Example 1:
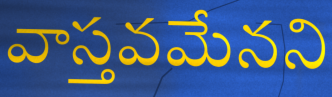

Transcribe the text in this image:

వాస్తవమేనని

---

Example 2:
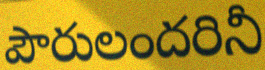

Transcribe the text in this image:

పౌరులందరినీ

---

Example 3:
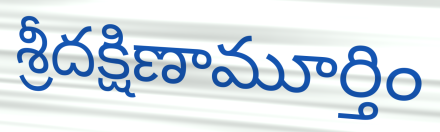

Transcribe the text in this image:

శ్రీదక్షిణామూర్తిం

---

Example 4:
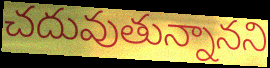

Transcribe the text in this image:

చదువుతున్నానని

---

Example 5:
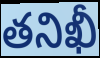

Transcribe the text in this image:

తనిఖీ